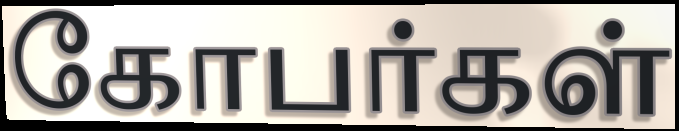
கோபர்கள்